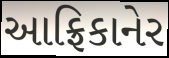
આફ્રિકાનેર